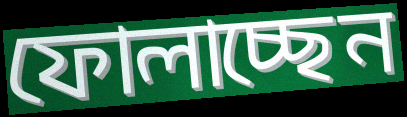
ফোলাচ্ছেন